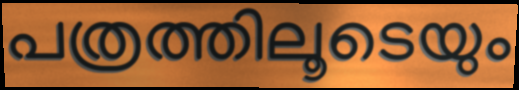
പത്രത്തിലൂടെയും